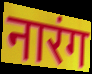
नारंग